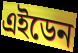
এইডেন